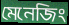
মেনেজিং